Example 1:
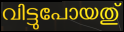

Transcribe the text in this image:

വിട്ടുപോയതു്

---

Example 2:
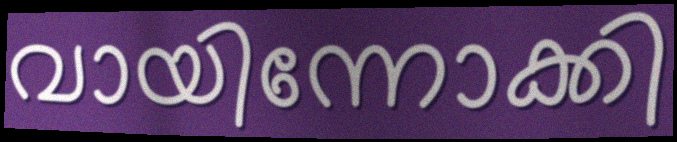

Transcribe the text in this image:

വായിന്നോക്കി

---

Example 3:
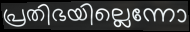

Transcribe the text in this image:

പ്രതിഭയില്ലെന്നോ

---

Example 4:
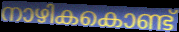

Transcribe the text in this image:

നാഴികകൊണ്ട്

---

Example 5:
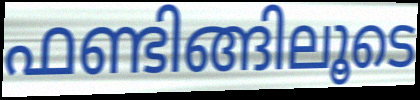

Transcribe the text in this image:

ഫണ്ടിങ്ങിലൂടെ